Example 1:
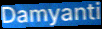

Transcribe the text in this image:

Damyanti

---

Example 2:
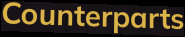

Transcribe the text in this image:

Counterparts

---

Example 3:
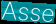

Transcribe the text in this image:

Asse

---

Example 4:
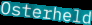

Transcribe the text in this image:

Osterheld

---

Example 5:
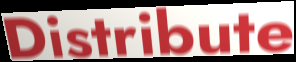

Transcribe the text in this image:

Distribute